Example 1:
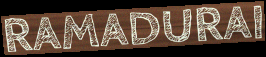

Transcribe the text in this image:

RAMADURAI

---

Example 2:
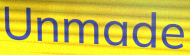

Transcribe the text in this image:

Unmade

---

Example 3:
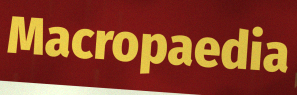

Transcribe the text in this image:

Macropaedia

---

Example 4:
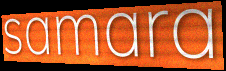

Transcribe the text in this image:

samara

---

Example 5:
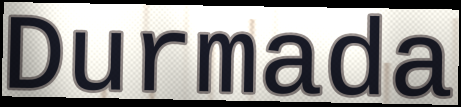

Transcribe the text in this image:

Durmada